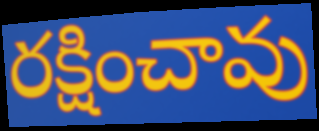
రక్షించావు